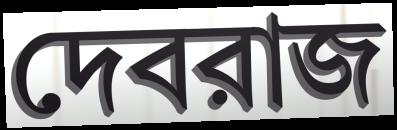
দেবরাজ